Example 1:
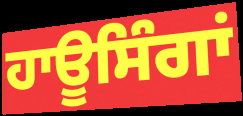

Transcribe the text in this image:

ਹਾਊਸਿੰਗਾਂ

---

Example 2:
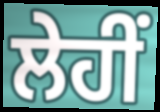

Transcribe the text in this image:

ਲੇਹੀਂ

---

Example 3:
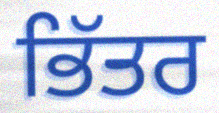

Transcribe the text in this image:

ਭਿੱਤਰ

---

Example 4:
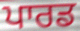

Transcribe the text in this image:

ਪਾਰਡ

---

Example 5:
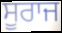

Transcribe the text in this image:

ਸੂਰਾਜ